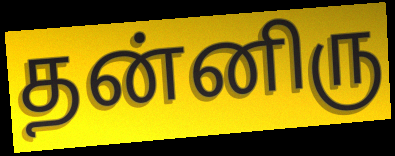
தன்னிரு